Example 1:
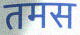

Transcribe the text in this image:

तमस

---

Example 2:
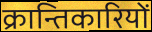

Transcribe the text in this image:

क्रान्तिकारियों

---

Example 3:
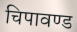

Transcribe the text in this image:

चिपावण्ड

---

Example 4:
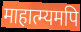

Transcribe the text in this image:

माहात्म्यमपि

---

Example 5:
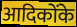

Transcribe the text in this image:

आदिकोंके